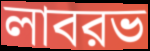
লাবরভ